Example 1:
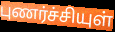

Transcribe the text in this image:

புணர்ச்சியுள்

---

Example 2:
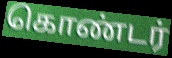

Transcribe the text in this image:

கொண்டர்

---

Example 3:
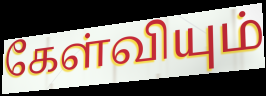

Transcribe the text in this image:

கேள்வியும்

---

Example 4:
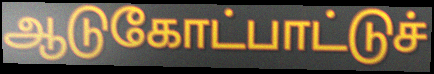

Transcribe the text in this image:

ஆடுகோட்பாட்டுச்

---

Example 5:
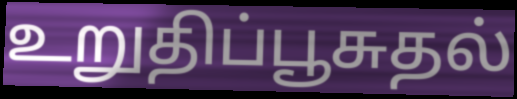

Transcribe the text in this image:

உறுதிப்பூசுதல்